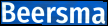
Beersma